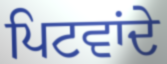
ਪਿਟਵਾਂਦੇ